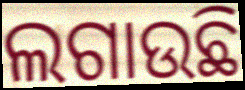
ଲଗାଉଛି